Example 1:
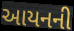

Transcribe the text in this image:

આયનની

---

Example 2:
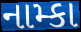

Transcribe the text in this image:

નામ્કા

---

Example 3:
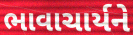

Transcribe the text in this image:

ભાવાચાર્યને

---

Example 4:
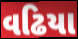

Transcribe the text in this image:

વઢિયા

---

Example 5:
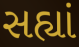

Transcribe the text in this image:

સહ્યાં